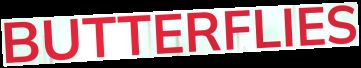
BUTTERFLIES